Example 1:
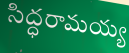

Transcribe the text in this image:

సిద్ధరామయ్య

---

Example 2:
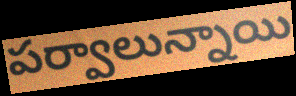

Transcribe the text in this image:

పర్వాలున్నాయి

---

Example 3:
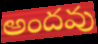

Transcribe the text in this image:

అందవు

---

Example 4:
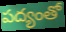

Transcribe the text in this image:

పద్యంతో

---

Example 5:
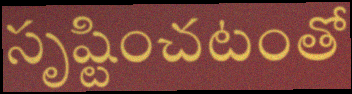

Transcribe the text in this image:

సృష్టించటంతో